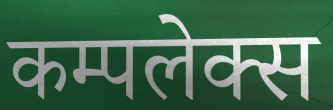
कम्पलेक्स